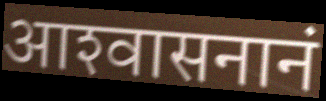
आश्वासनानं